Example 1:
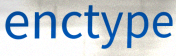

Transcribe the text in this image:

enctype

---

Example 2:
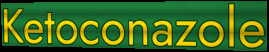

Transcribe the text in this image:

Ketoconazole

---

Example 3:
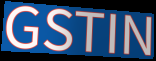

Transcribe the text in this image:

GSTIN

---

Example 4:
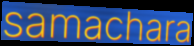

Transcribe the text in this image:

samachara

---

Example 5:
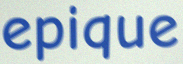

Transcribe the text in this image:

epique